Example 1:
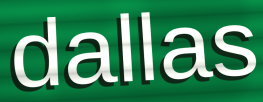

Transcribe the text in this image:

dallas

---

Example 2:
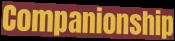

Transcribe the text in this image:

Companionship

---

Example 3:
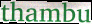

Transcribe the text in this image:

thambu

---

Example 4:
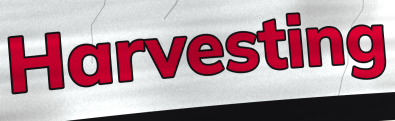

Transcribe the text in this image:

Harvesting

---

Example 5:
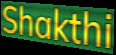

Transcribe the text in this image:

Shakthi